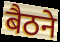
बैठने